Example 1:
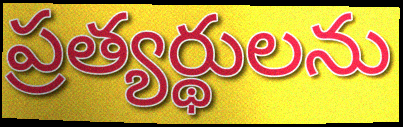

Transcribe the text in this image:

ప్రత్యర్థులను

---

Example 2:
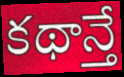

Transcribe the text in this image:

కథాన్తే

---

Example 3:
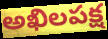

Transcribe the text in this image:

అఖిలపక్ష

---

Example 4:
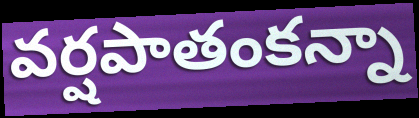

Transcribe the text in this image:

వర్షపాతంకన్నా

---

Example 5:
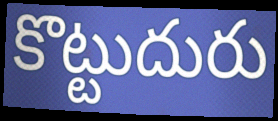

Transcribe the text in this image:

కొట్టుదురు